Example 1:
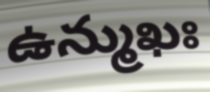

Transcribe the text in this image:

ఉన్ముఖః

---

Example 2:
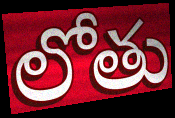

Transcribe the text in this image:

లోతు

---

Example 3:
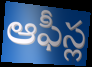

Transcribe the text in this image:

ఆఫీస్ల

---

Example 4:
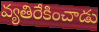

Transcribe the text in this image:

వ్యతిరేకించాడు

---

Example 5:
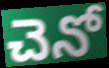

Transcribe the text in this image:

చెనో